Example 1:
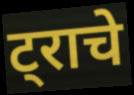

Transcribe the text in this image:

ट्राचे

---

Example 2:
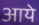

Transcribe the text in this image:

आये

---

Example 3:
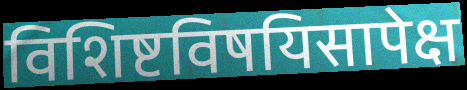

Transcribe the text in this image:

विशिष्टविषयिसापेक्ष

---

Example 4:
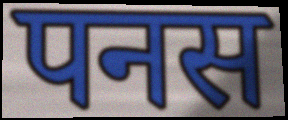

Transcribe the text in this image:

पनस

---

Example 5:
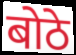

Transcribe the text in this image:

बोठे